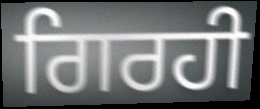
ਗਿਰਹੀ